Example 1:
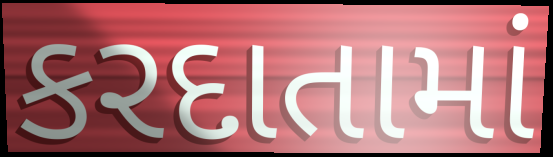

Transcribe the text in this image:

કરદાતામાં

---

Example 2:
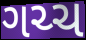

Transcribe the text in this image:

ગચ્ચ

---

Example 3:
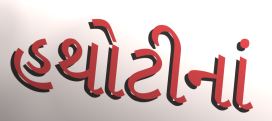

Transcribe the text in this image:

હથોટીનાં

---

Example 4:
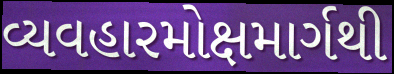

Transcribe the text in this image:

વ્યવહારમોક્ષમાર્ગથી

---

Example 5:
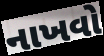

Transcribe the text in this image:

નાખવો